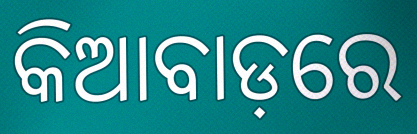
କିଆବାଡ଼ରେ